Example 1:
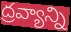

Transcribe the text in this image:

ద్రవ్యాన్ని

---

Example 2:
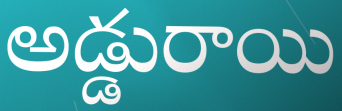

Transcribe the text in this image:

అడ్డురాయి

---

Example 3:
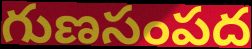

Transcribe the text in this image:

గుణసంపద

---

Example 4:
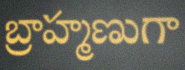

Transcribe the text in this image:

బ్రాహ్మణుగా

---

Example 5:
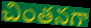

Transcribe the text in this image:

చింతనగా